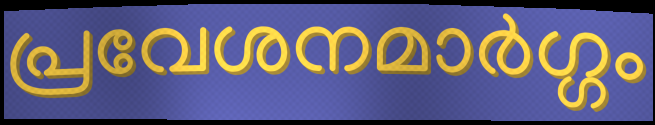
പ്രവേശനമാർഗ്ഗം